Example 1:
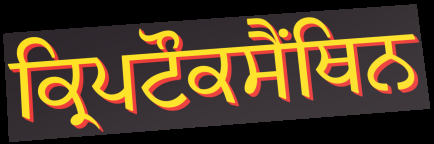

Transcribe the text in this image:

ਕ੍ਰਿਪਟੌਕਸੈਂਥਿਨ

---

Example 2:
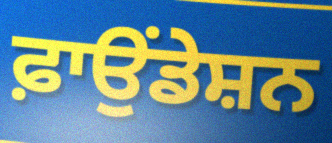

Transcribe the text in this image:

ਫ਼ਾਉਂਡੇਸ਼ਨ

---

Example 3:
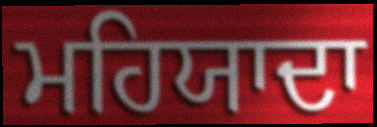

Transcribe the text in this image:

ਮਹਿਯਾਦਾ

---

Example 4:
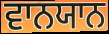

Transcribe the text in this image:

ਵਾਨਯਾਨ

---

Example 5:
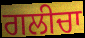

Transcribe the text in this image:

ਗਲੀਚਾ